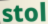
stol